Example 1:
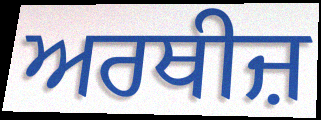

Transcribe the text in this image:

ਅਰਥੀਜ਼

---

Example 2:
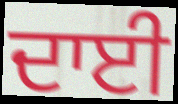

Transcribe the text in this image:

ਦਾਈ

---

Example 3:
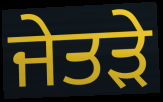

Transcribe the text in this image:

ਜੇਤੜੇ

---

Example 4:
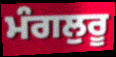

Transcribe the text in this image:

ਮੰਗਲੁਰੂ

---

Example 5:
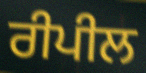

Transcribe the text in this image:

ਰੀਪੀਲ